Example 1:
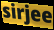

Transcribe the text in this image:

sirjee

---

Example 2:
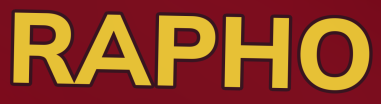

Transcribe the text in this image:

RAPHO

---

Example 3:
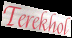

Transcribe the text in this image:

Terekhol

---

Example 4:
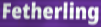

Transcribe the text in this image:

Fetherling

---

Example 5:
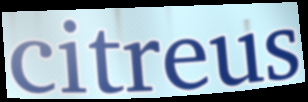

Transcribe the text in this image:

citreus